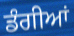
ਡੰਗੀਆਂ